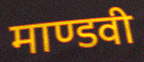
माण्डवी